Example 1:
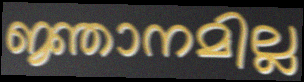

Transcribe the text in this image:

ജ്ഞാനമില്ല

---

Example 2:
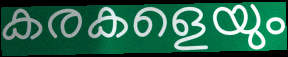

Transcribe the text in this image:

കരകളെയും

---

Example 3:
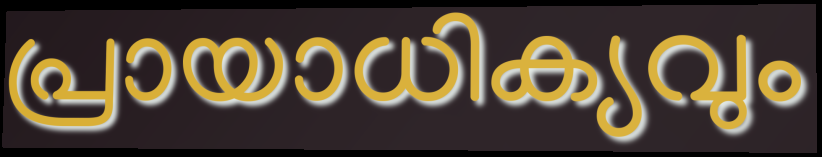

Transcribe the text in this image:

പ്രായാധിക്യവും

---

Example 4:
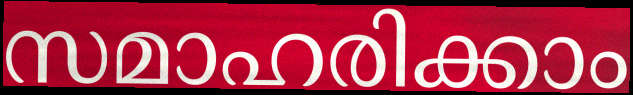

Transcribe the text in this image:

സമാഹരിക്കാം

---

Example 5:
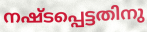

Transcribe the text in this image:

നഷ്ടപ്പെട്ടതിനു